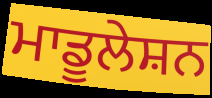
ਮਾਡੂਲੇਸ਼ਨ